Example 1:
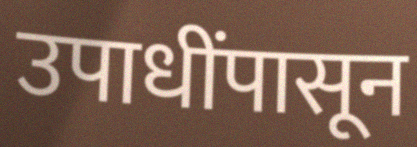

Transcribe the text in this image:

उपाधींपासून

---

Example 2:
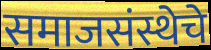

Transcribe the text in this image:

समाजसंस्थेचे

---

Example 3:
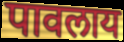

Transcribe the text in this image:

पावलाय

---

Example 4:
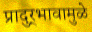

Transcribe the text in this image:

प्रादुर्भावामुळे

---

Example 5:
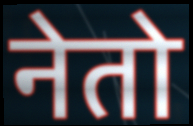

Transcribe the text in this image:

नेतो